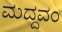
ಮದ್ದವಂ